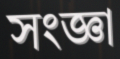
সংজ্ঞা